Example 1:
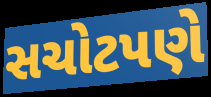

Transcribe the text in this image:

સચોટપણે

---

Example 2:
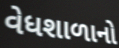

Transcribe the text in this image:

વેધશાળાનો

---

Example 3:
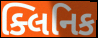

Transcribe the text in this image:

ક્લિનિક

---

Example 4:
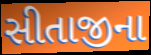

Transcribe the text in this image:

સીતાજીના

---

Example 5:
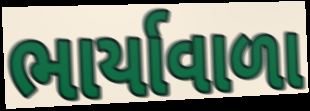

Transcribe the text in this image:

ભાર્યાવાળા